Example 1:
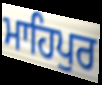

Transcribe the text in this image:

ਮਾਹਿਪੁਰ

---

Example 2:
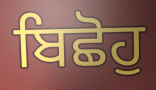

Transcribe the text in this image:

ਬਿਛੋਹੁ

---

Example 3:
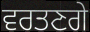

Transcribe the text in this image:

ਵਰਤਣਗੇ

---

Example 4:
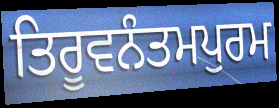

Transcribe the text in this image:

ਤਿਰੂਵਨੰਤਮਪੁਰਮ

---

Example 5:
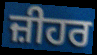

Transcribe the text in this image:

ਜ਼ੀਹਰ